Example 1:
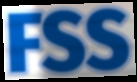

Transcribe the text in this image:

FSS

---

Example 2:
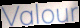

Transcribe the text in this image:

Valour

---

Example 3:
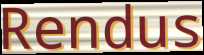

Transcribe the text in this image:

Rendus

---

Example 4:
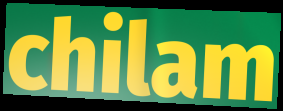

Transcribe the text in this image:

chilam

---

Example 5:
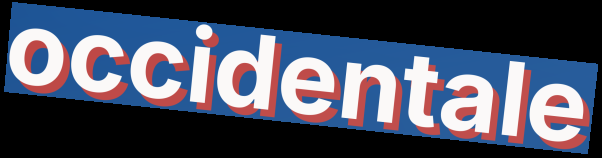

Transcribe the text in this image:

occidentale